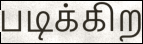
படிக்கிற